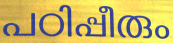
പഠിപ്പീരും